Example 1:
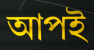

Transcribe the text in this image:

আপই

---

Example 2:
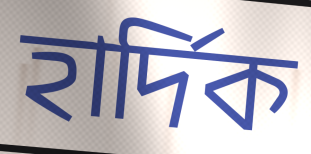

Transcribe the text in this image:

হার্দিক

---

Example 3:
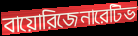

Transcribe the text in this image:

বায়োরিজেনারেটিভ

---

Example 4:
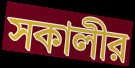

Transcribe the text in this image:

সকালীর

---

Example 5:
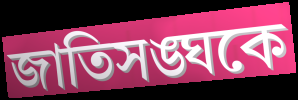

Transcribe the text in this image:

জাতিসঙ্ঘকে